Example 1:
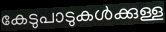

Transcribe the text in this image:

കേടുപാടുകൾക്കുള്ള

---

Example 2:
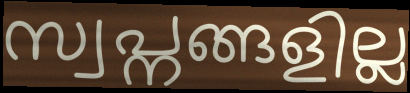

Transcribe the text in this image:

സ്വപ്നങ്ങളില്ല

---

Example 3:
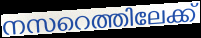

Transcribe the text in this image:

നസറെത്തിലേക്ക്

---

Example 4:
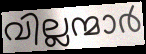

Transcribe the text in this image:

വില്ലന്മാർ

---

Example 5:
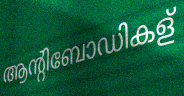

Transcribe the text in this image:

ആന്റിബോഡികള്